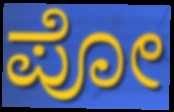
ಪೋ